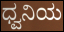
ಧ್ವನಿಯ